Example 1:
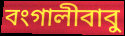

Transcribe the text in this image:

বংগালীবাবু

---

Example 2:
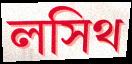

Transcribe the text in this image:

লসিথ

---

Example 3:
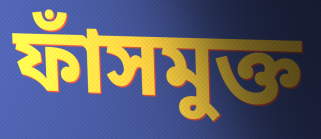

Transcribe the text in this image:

ফাঁসমুক্ত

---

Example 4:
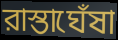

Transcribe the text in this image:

রাস্তাঘেঁষা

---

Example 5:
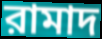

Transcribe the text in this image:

রামাদ